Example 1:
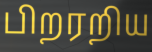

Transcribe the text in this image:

பிறரறிய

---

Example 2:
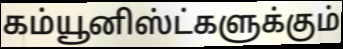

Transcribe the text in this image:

கம்யூனிஸ்ட்களுக்கும்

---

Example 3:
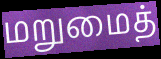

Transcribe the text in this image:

மறுமைத்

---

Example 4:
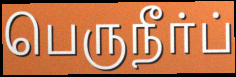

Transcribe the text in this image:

பெருநீர்ப்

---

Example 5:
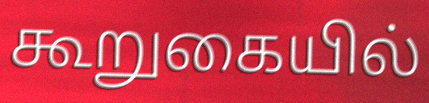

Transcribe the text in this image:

கூறுகையில்